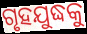
ଗୃହଯୁଦ୍ଧକୁ